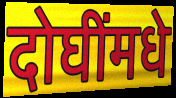
दोघींमधे